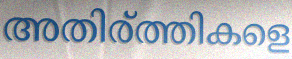
അതിര്ത്തികളെ